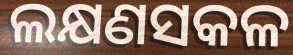
ଲକ୍ଷଣସକଳ